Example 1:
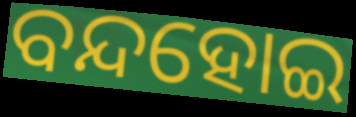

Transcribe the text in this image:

ବନ୍ଦହୋଇ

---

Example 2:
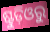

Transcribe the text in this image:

ଷ୍ଟୁଡ଼ିଓରୁ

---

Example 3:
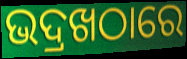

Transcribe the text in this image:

ଭଦ୍ରଖଠାରେ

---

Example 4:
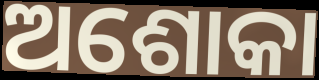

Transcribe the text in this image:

ଅଶୋକା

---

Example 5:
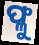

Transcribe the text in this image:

ଫ୍ଳୁ